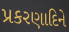
પ્રકરણાદિને